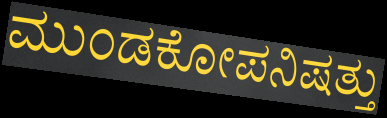
ಮುಂಡಕೋಪನಿಷತ್ತು